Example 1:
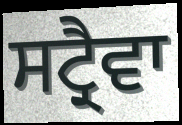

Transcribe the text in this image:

ਸਟ੍ਰੈਵਾ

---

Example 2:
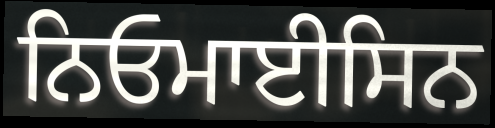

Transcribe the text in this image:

ਨਿਓਮਾਈਸਿਨ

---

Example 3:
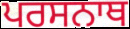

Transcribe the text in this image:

ਪਰਸਨਾਥ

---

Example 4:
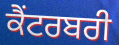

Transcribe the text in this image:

ਕੈਂਟਰਬਰੀ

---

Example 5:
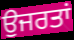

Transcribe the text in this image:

ਉਜਰਤਾਂ